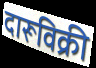
दारूविक्री